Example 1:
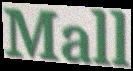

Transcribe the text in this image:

Mall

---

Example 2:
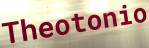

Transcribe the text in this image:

Theotonio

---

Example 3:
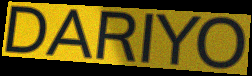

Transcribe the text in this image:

DARIYO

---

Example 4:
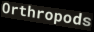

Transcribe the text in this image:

Orthropods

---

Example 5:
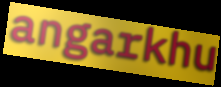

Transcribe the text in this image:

angarkhu